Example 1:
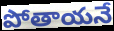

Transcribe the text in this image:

పోతాయనే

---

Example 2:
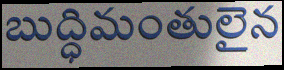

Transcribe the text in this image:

బుద్ధిమంతులైన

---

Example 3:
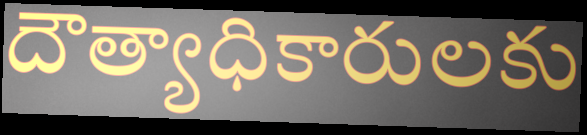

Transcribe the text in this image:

దౌత్యాధికారులకు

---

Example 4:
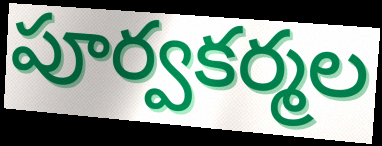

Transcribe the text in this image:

పూర్వకర్మల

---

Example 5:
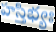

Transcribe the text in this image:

హస్తిభ్యః